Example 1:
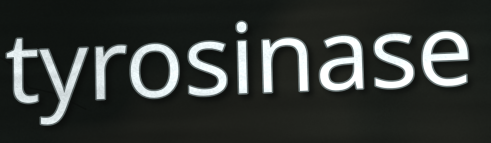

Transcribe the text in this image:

tyrosinase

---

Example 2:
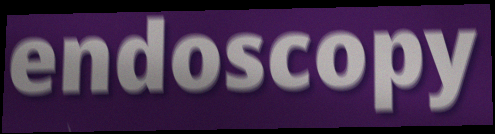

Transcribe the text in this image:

endoscopy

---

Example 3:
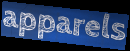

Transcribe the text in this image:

apparels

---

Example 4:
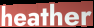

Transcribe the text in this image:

heather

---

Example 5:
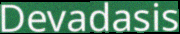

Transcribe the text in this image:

Devadasis